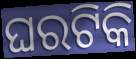
ଘରଟିକି